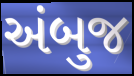
અંબુજ